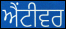
ਐਂਟੀਵਰ